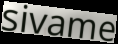
sivame